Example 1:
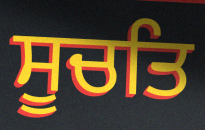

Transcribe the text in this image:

ਸੂਚਤਿ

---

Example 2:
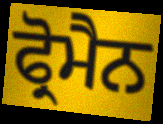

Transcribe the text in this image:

ਫ੍ਰੋਮੈਨ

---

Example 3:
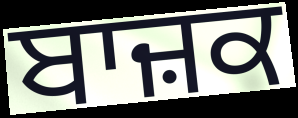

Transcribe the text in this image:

ਬਾਜ਼ਕ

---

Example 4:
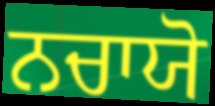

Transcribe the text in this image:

ਨਚਾਯੋ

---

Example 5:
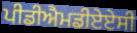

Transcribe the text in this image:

ਪੀਡੀਐਮਡੀਏਏਸੀ